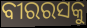
ବୀରରସକୁ